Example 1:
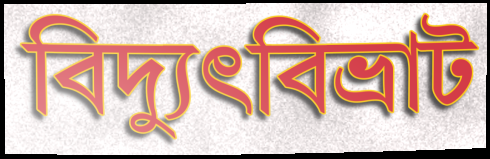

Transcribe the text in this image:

বিদ্যুৎবিভ্রাট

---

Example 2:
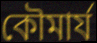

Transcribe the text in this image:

কৌমার্য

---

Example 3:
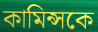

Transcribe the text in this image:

কামিন্সকে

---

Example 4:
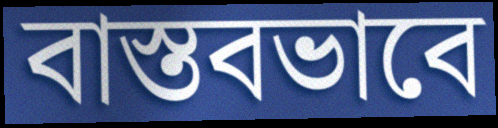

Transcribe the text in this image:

বাস্তবভাবে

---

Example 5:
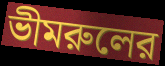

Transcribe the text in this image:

ভীমরুলের